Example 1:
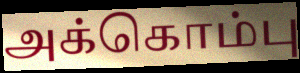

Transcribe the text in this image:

அக்கொம்பு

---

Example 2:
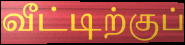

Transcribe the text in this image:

வீட்டிற்குப்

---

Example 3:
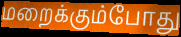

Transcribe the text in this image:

மறைக்கும்போது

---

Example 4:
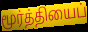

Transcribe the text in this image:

மூர்த்தியைப்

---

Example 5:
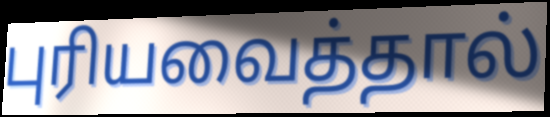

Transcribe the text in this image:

புரியவைத்தால்